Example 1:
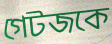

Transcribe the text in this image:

গেটজকে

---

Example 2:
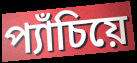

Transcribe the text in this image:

প্যাঁচিয়ে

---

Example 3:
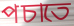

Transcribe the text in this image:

পচাতে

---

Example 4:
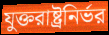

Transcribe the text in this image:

যুক্তরাষ্ট্রনির্ভর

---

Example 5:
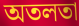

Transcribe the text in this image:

অতলতা